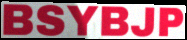
BSYBJP